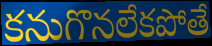
కనుగొనలేకపోతే